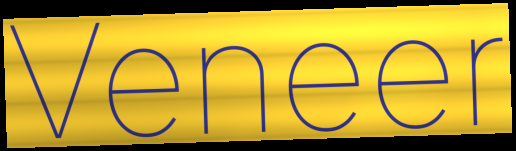
Veneer